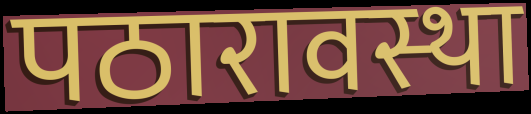
पठारावस्था